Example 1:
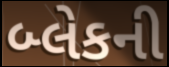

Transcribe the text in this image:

બ્લેકની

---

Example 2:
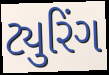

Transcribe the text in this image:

ટ્યુરિંગ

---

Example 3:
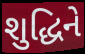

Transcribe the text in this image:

શુદ્ધિને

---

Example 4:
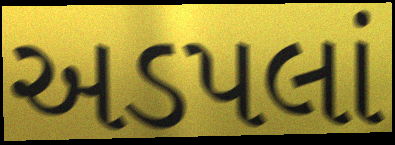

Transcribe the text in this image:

અડપલાં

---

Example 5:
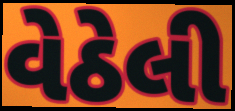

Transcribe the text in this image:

વેઠેલી